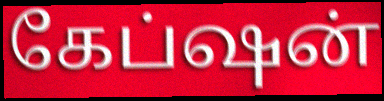
கேப்ஷன்